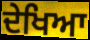
ਦੇਖਿਆ